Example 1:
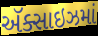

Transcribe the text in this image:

ઍક્સાઇઝમાં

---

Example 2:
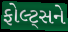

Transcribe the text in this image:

ફોલ્ટ્સને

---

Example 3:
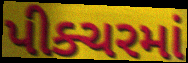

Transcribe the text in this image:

પીક્ચરમાં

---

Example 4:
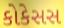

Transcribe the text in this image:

કોકેસસ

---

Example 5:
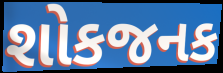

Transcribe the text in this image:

શોકજનક